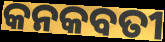
କନକବତୀ